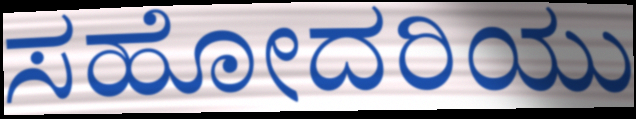
ಸಹೋದರಿಯು